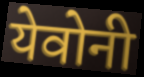
येवोनी